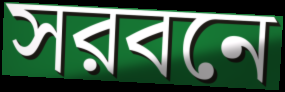
সরবনে